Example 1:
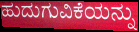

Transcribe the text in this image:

ಹುದುಗುವಿಕೆಯನ್ನು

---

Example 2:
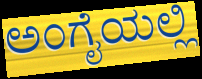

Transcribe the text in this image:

ಅಂಗೈಯಲ್ಲಿ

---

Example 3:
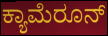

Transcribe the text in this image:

ಕ್ಯಾಮೆರೂನ್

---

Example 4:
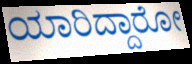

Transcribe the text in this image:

ಯಾರಿದ್ದಾರೋ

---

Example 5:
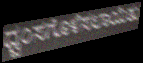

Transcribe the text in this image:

ಧ್ವಂಸಗೊಳಿಸಲಾಯಿತು